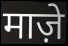
माज़े